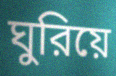
ঘুরিয়ে